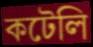
কটেলি